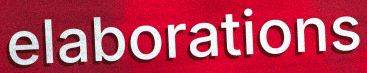
elaborations